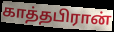
காத்தபிரான்